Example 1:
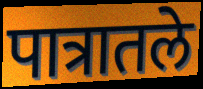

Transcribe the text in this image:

पात्रातले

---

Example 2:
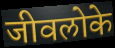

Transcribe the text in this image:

जीवलोके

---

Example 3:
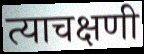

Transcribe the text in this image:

त्याचक्षणी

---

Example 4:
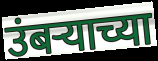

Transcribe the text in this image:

उंबऱ्याच्या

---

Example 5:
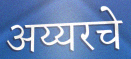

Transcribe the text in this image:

अय्यरचे